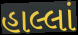
હાલ્લાં